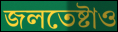
জলতেষ্টাও